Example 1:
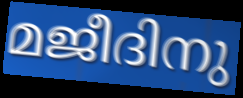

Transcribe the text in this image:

മജീദിനു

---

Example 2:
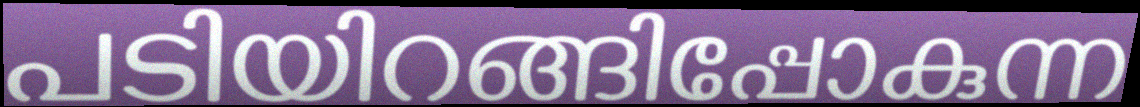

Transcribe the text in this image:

പടിയിറങ്ങിപ്പോകുന്ന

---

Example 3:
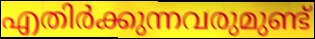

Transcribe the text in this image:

എതിർക്കുന്നവരുമുണ്ട്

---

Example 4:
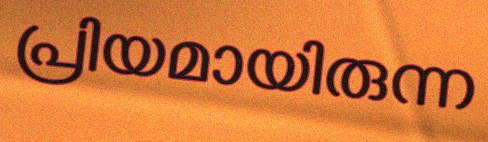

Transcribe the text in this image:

പ്രിയമായിരുന്ന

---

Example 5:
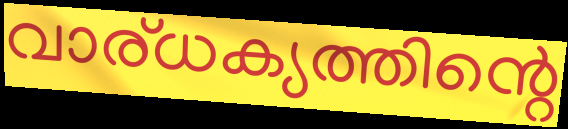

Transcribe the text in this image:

വാര്ധക്യത്തിന്റെ